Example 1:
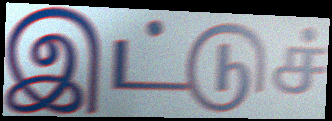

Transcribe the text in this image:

இட்டுச்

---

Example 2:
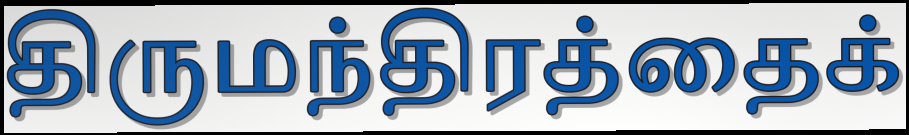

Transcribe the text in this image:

திருமந்திரத்தைக்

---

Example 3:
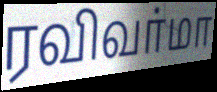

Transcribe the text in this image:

ரவிவர்மா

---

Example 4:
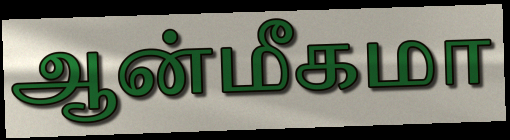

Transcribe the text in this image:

ஆன்மீகமா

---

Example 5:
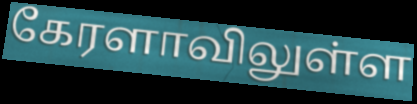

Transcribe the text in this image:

கேரளாவிலுள்ள